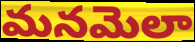
మనమెలా